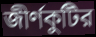
জীর্ণকুটির